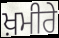
ਖ਼ਮੀਰੇ